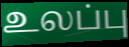
உலப்பு